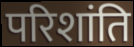
परिशांति